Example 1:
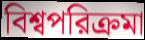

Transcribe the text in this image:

বিশ্বপরিক্রমা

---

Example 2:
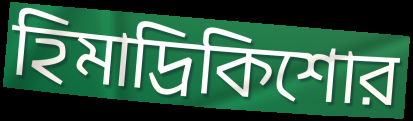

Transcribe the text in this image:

হিমাদ্রিকিশোর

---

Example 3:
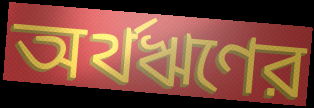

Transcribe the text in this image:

অর্থঋণের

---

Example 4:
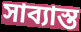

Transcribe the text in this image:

সাব্যাস্ত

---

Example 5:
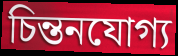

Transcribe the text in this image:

চিন্তনযোগ্য